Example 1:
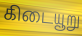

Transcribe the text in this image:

கிடையூறு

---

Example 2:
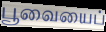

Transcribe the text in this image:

பூவையைப்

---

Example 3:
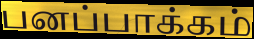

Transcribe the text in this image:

பனப்பாக்கம்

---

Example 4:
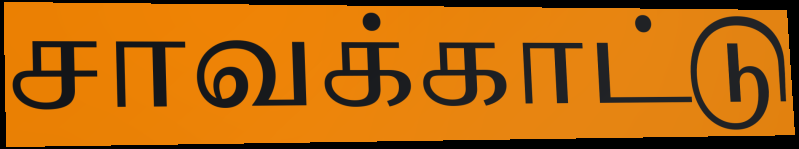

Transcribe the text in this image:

சாவக்காட்டு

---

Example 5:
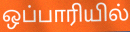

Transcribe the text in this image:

ஒப்பாரியில்